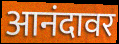
आनंदावर